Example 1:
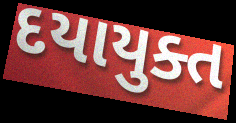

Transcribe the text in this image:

દયાયુક્ત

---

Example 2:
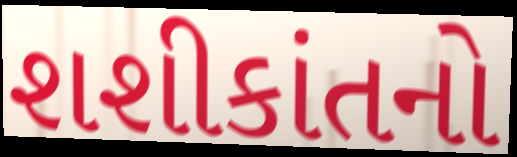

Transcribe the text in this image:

શશીકાંતનો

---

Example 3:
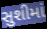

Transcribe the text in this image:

સુશીમાં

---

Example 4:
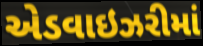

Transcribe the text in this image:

એડવાઇઝરીમાં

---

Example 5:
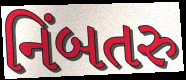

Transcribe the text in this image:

નિંબતરુ